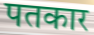
पतकार